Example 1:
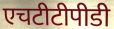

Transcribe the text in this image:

एचटीटीपीडी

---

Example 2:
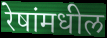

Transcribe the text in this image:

रेषांमधील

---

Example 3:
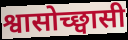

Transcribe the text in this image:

श्वासोच्छ्वासी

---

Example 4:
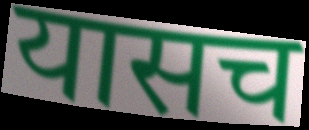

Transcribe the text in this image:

यासच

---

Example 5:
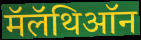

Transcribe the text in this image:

मॅलॅथिऑन